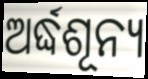
ଅର୍ଦ୍ଧଶୂନ୍ୟ